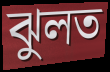
ঝুলত